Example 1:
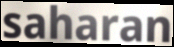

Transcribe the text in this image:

saharan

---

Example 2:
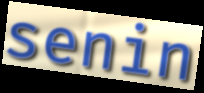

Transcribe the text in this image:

senin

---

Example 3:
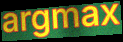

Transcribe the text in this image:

argmax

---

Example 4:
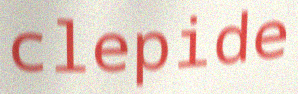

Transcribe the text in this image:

clepide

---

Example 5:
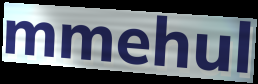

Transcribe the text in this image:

mmehul